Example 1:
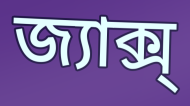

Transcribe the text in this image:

জ্যাক্স্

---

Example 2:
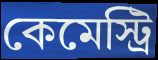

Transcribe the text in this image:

কেমেস্ট্রি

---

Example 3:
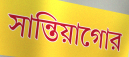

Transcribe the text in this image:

সান্তিয়াগোর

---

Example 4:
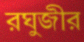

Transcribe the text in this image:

রঘুজীর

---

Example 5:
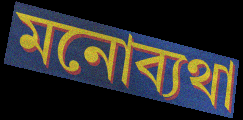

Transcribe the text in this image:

মনোব্যথা